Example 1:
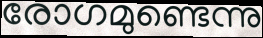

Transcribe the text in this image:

രോഗമുണ്ടെന്നു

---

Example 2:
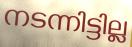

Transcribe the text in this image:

നടന്നിട്ടില്ല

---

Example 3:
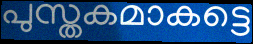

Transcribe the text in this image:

പുസ്തകമാകട്ടെ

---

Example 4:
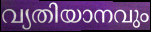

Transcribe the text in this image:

വ്യതിയാനവും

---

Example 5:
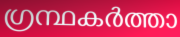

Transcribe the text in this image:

ഗ്രന്ഥകർത്താ